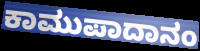
ಕಾಮುಪಾದಾನಂ